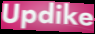
Updike